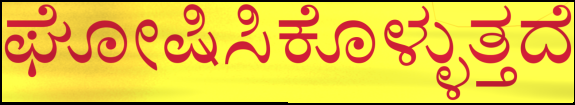
ಘೋಷಿಸಿಕೊಳ್ಳುತ್ತದೆ